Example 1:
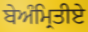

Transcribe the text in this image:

ਬੇਅੰਮ੍ਰਿਤੀਏ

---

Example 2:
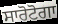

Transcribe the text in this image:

ਸਾਰੋਟੋਗਾ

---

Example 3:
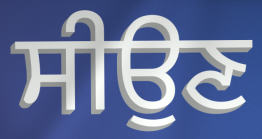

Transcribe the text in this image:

ਸੀਉਣ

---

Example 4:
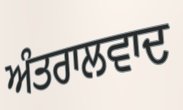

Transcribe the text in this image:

ਅੰਤਰਾਲਵਾਦ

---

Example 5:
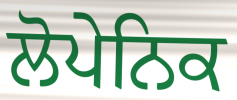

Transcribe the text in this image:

ਲੋਪੇਨਿਕ